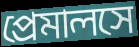
প্রেমালসে